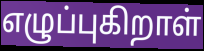
எழுப்புகிறாள்